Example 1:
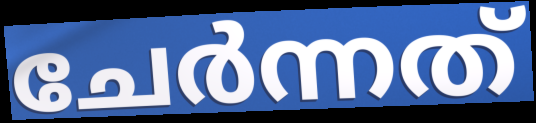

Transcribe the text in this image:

ചേർന്നത്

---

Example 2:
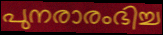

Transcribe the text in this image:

പുനരാരംഭിച്ച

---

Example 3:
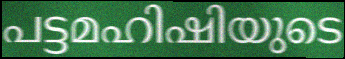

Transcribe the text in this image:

പട്ടമഹിഷിയുടെ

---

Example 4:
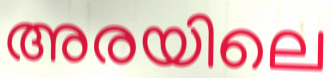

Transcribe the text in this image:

അരയിലെ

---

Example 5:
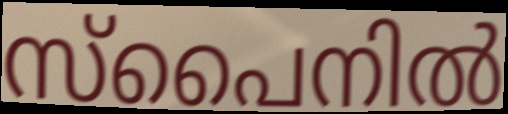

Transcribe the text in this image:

സ്പൈനിൽ